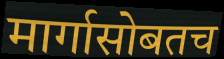
मार्गासोबतच